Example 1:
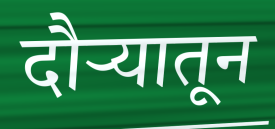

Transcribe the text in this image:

दौऱ्यातून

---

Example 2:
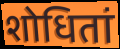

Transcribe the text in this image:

शोधितां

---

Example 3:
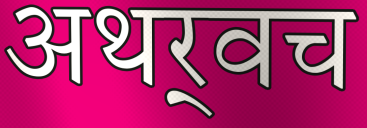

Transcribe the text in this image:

अथर्वच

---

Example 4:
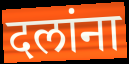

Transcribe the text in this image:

दलांना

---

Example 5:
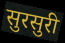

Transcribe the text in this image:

सुरसुरी